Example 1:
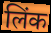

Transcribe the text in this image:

लिंक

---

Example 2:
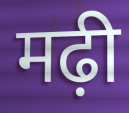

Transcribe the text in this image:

मढ़ी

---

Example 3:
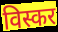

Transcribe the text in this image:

विस्कर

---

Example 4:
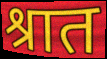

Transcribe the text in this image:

श्रात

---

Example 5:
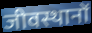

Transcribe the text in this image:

जीवस्थानों